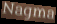
Nagma